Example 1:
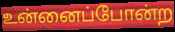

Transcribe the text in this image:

உன்னைப்போன்ற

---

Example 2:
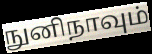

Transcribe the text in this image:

நுனிநாவும்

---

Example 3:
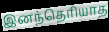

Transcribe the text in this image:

இனந்தெரியாத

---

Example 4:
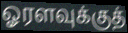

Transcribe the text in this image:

ஓரளவுக்குத்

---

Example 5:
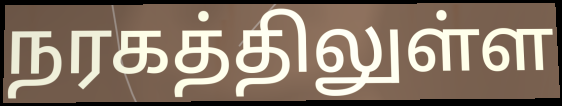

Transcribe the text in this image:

நரகத்திலுள்ள